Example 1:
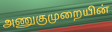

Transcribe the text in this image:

அணுகுமுறையின்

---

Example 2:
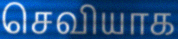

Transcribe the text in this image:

செவியாக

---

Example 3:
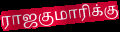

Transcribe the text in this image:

ராஜகுமாரிக்கு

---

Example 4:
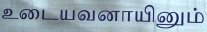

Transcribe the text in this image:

உடையவனாயினும்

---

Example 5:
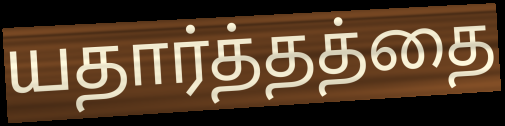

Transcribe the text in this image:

யதார்த்தத்தை